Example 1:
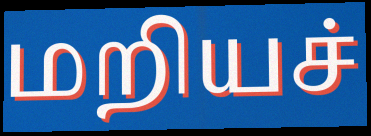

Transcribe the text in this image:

மறியச்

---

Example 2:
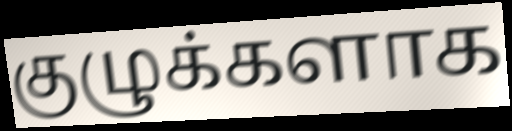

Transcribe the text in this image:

குழுக்களாக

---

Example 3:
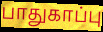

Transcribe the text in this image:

பாதுகாப்பு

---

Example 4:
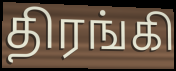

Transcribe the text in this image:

திரங்கி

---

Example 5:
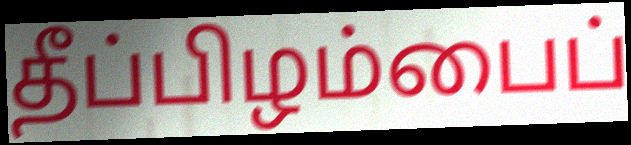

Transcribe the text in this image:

தீப்பிழம்பைப்